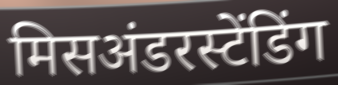
मिसअंडरस्टेंडिंग